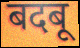
बदबू